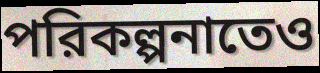
পরিকল্পনাতেও